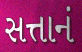
સત્તાનં